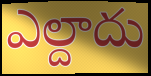
ఎల్దాదు